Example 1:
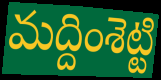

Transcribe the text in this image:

మద్దింశెట్టి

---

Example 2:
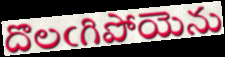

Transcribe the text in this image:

దొలఁగిపోయెను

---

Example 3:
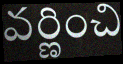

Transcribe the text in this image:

వర్ణించి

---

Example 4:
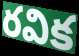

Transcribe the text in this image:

రవిక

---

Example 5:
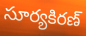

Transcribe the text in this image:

సూర్యకిరణ్